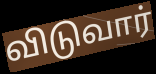
விடுவார்